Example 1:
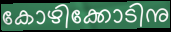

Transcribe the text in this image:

കോഴിക്കോടിനു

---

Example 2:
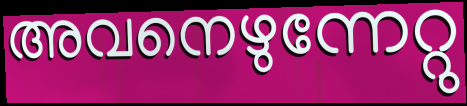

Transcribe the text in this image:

അവനെഴുന്നേറ്റു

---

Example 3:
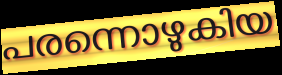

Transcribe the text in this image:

പരന്നൊഴുകിയ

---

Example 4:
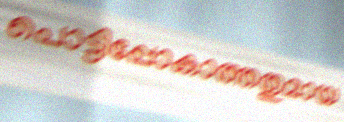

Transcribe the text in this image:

പൊട്ടിപ്പോകാത്തതുമായ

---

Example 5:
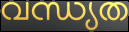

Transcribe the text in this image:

വന്ധ്യത